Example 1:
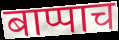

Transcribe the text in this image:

बाप्पाच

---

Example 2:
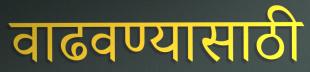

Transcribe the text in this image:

वाढवण्यासाठी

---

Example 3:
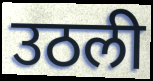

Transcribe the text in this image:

उठली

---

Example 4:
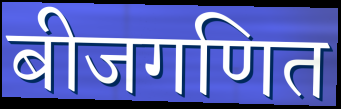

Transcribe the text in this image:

बीजगणित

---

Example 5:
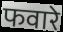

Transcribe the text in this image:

फवारे